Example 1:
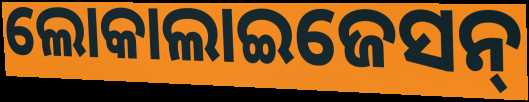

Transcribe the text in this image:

ଲୋକାଲାଇଜେସନ୍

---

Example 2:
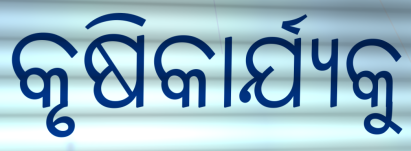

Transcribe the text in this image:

କୃଷିକାର୍ଯ୍ୟକୁ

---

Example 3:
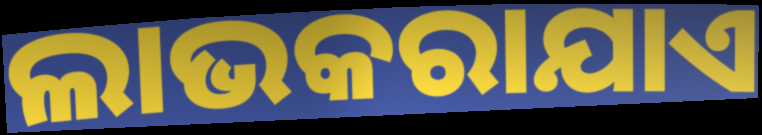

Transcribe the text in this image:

ଲାଭକରାଯାଏ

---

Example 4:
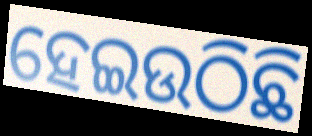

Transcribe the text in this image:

ହେଇଉଠିଛି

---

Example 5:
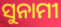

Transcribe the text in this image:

ସୁନାମୀ